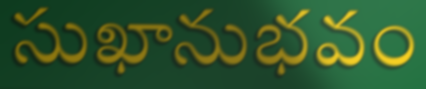
సుఖానుభవం